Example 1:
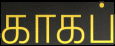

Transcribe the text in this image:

காகப்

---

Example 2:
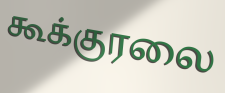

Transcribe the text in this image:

கூக்குரலை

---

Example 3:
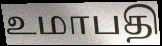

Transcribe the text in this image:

உமாபதி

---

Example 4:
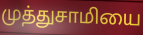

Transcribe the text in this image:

முத்துசாமியை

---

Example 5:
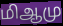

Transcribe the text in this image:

மிஆமு